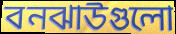
বনঝাউগুলো